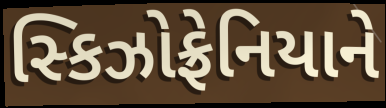
સ્કિઝોફ્રેનિયાને